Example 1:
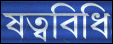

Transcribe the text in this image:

ষত্ববিধি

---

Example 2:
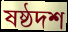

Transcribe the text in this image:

ষষ্ঠদশ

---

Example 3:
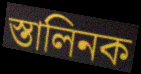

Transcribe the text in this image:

স্তালিনক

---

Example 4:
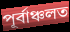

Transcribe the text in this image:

পূৰ্বাঞ্চলত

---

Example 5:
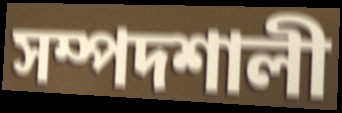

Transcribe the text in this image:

সম্পদশালী